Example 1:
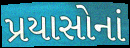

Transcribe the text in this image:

પ્રયાસોનાં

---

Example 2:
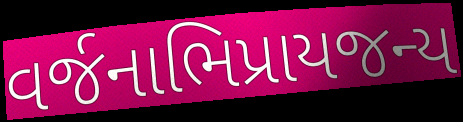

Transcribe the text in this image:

વર્જનાભિપ્રાયજન્ય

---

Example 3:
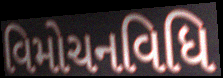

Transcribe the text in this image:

વિમોચનવિધિ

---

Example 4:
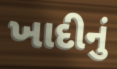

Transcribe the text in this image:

ખાદીનું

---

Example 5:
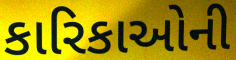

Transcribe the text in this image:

કારિકાઓની